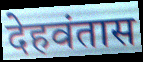
देहवंतास